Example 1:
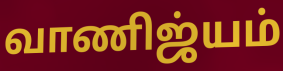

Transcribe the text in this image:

வாணிஜ்யம்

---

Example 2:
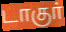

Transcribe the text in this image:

டாகுர்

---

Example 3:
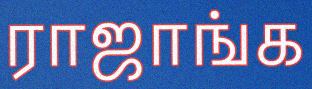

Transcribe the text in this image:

ராஜாங்க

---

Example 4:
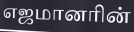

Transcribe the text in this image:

எஜமானரின்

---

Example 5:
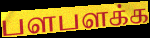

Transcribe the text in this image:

பளபளக்க